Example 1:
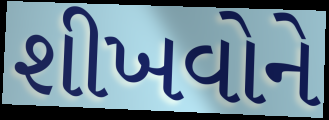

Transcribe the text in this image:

શીખવોને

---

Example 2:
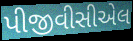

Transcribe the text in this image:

પીજીવીસીએલ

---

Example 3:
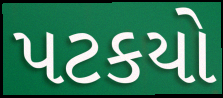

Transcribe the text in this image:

પટકયો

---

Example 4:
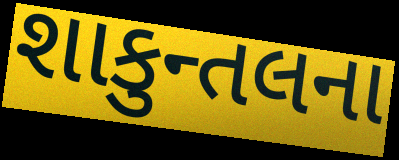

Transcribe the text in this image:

શાકુન્તલના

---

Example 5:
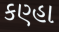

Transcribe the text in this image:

કણ્હા